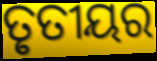
ତୃତୀୟର